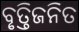
ବୃତ୍ତିଜନିତ